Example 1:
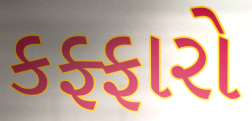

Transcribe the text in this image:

કફ્ફારો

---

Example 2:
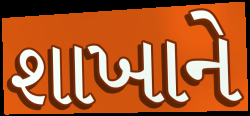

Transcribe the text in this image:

શાખાને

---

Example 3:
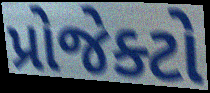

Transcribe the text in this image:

પ્રોજેક્ટો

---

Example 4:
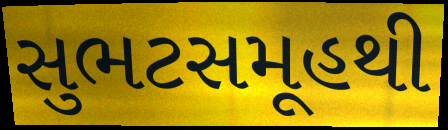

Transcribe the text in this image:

સુભટસમૂહથી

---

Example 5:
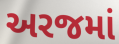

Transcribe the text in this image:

અરજમાં